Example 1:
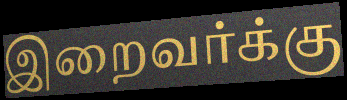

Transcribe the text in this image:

இறைவர்க்கு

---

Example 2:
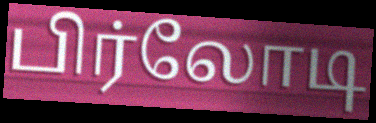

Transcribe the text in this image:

பிர்லோடி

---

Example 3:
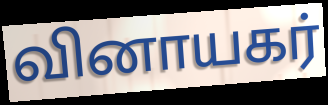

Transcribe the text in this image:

வினாயகர்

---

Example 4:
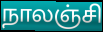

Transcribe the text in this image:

நாலஞ்சி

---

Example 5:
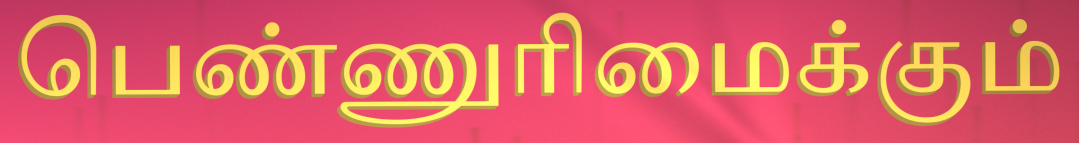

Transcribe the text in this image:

பெண்ணுரிமைக்கும்